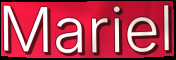
Mariel